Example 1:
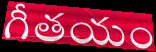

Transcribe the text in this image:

గీతయం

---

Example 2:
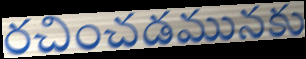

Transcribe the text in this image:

రచించడమునకు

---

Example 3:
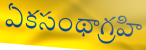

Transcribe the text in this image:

ఏకసంథాగ్రహి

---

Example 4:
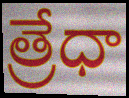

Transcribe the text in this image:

త్రేధా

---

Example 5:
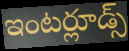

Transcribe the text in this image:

ఇంటర్లూడ్స్